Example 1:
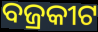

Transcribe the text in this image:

ବଜ୍ରକୀଟ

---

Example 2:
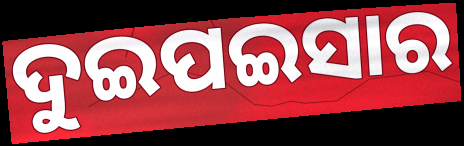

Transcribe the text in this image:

ଦୁଇପଇସାର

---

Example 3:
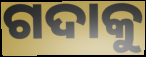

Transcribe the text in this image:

ଗଦାକୁ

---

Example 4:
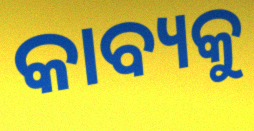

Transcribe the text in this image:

କାବ୍ୟକୁ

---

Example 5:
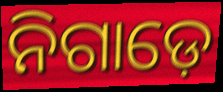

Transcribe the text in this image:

ନିଗାଡ଼େ